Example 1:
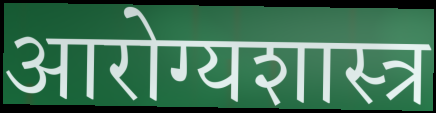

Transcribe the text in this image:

आरोग्यशास्त्र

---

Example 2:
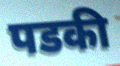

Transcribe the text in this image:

पडकी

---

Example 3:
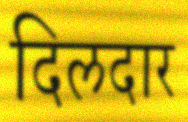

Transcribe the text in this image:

दिलदार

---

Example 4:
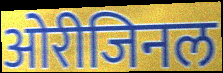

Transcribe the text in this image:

ओरीजिनल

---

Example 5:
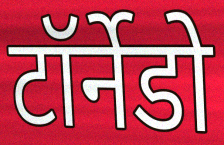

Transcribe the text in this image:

टॉर्नेडो